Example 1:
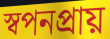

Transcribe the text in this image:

স্বপনপ্রায়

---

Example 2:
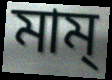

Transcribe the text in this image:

মাম্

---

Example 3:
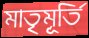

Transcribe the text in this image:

মাতৃমূর্তি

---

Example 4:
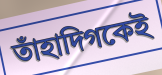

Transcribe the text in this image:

তাঁহাদিগকেই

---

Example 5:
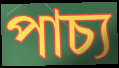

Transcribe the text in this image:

পাচ্য